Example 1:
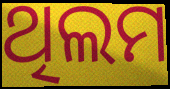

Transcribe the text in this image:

ଥିଲମ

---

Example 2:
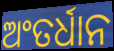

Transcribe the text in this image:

ଅଂତର୍ଧାନ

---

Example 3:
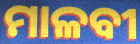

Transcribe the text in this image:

ମାଳବୀ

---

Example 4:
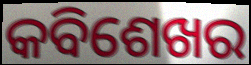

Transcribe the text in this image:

କବିଶେଖର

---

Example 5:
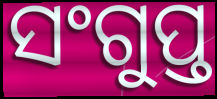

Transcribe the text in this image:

ସଂଗୁପ୍ତ